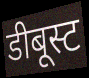
डीबूस्ट